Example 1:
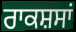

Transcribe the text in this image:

ਰਾਕਸ਼ਸਾਂ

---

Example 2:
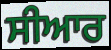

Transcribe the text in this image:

ਸੀਆਰ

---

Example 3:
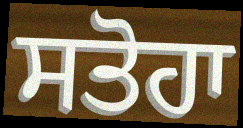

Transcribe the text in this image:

ਸਤੋਹਾ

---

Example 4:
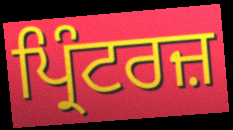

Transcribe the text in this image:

ਪ੍ਰਿੰਟਰਜ਼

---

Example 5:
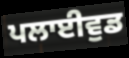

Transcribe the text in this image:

ਪਲਾਈਵੁਡ